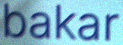
bakar